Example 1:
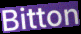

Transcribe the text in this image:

Bitton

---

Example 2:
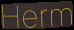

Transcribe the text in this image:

Herm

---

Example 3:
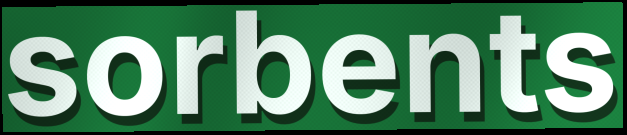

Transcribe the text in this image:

sorbents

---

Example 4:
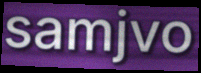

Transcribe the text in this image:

samjvo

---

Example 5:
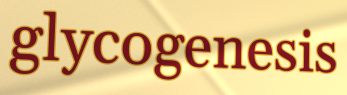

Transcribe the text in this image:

glycogenesis